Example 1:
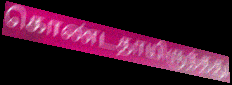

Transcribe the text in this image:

கொண்டதாயிருந்தது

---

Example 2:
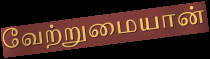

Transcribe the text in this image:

வேற்றுமையான்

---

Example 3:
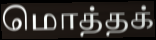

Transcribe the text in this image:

மொத்தக்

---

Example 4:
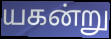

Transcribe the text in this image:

யகன்று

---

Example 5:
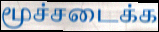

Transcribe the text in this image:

மூச்சடைக்க